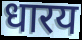
धारय